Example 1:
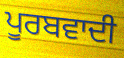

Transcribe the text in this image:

ਪੂਰਬਵਾਦੀ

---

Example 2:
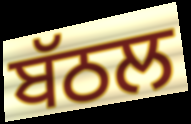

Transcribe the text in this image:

ਬੱਠਲ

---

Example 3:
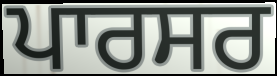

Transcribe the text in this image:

ਪਾਰਸਰ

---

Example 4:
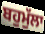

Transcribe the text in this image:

ਬਹੁਮੁੱਲਾ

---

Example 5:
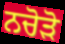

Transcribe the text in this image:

ਨਚੋੜੋ